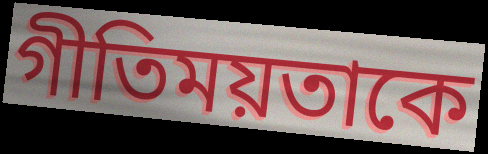
গীতিময়তাকে